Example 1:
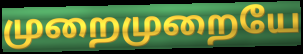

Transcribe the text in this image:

முறைமுறையே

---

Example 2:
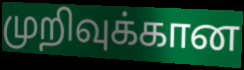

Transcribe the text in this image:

முறிவுக்கான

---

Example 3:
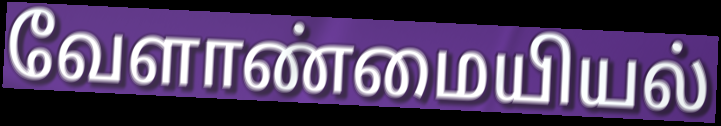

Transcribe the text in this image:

வேளாண்மையியல்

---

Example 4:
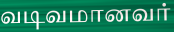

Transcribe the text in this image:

வடிவமானவர்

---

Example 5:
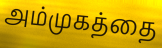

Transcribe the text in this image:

அம்முகத்தை